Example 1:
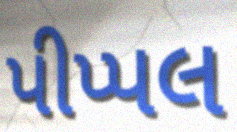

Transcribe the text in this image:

પીપ્પલ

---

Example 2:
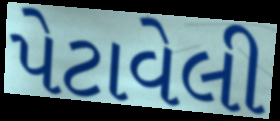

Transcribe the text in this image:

પેટાવેલી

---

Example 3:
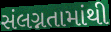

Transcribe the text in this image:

સંલગ્નતામાંથી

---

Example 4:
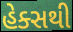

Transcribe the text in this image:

હેક્સથી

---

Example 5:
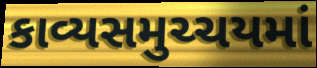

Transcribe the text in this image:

કાવ્યસમુચ્ચયમાં